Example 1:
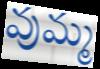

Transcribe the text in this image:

వుమ్మ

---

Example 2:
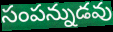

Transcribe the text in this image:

సంపన్నుడవు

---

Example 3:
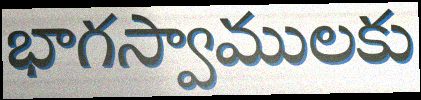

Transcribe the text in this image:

భాగస్వాములకు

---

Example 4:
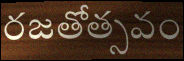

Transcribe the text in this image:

రజతోత్సవం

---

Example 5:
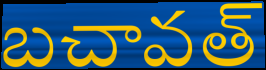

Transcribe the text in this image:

బచావత్